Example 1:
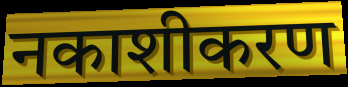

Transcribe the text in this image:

नकाशीकरण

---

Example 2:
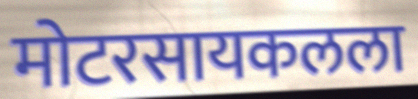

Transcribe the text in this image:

मोटरसायकलला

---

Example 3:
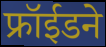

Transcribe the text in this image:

फ्रॉईडने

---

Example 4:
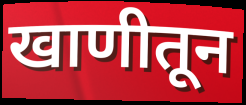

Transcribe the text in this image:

खाणीतून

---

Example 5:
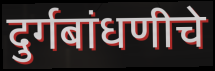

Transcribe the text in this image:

दुर्गबांधणीचे